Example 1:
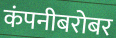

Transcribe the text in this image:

कंपनीबरोबर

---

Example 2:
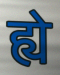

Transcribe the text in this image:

ह्ये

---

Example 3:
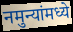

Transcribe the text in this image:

नमुन्यांमध्ये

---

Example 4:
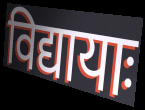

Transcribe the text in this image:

विद्यायाः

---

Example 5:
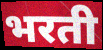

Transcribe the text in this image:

भरती